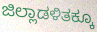
ಜಿಲ್ಲಾಡಳಿತಕ್ಕೂ